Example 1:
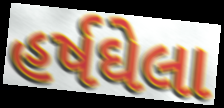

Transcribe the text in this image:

હર્ષઘેલા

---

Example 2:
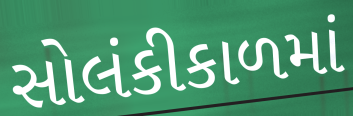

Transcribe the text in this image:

સોલંકીકાળમાં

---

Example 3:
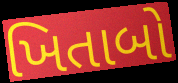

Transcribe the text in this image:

ખિતાબો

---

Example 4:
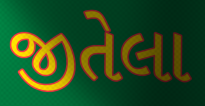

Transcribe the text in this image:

જીતેલા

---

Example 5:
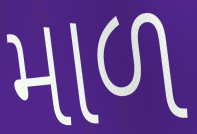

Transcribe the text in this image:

માળ